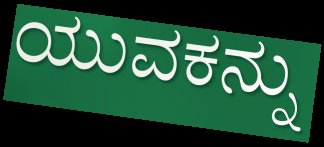
ಯುವಕನ್ನು